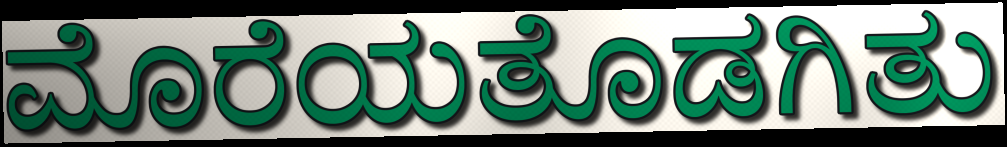
ಮೊರೆಯತೊಡಗಿತು